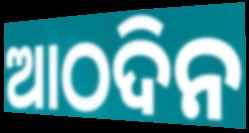
ଆଠଦିନ